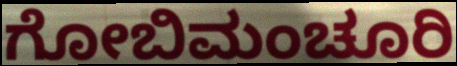
ಗೋಬಿಮಂಚೂರಿ